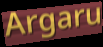
Argaru